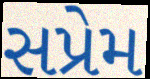
સપ્રેમ